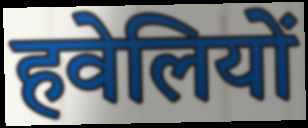
हवेलियों